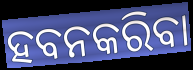
ହବନକରିବା